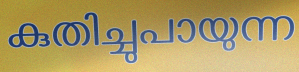
കുതിച്ചുപായുന്ന